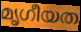
മൃഗീയത